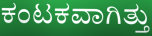
ಕಂಟಕವಾಗಿತ್ತು